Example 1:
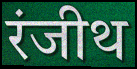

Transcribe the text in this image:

रंजीथ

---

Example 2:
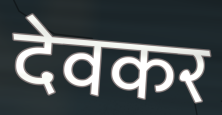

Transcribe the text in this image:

देवकर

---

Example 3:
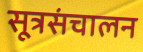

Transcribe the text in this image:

सूत्रसंचालन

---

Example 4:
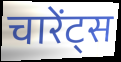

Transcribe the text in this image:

चारेंट्स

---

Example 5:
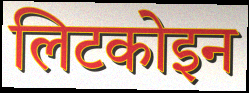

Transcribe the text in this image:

लिटकोइन